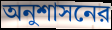
অনুশাসনের